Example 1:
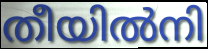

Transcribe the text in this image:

തീയിൽനി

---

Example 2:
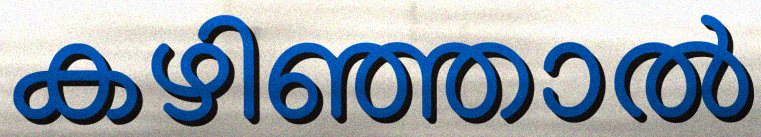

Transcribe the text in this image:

കഴിഞ്ഞാൽ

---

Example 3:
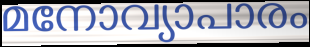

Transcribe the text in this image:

മനോവ്യാപാരം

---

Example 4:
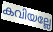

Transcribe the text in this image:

കവിയല്ലേ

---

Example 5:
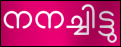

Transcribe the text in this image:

നനച്ചിട്ടു